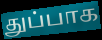
துப்பாக